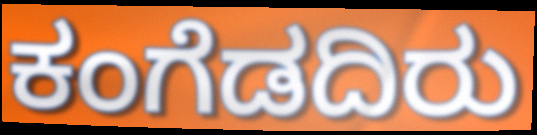
ಕಂಗೆಡದಿರು